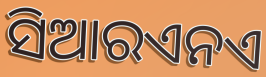
ସିଆରଏନଏ